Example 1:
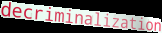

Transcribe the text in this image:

decriminalization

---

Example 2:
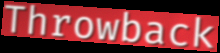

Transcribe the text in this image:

Throwback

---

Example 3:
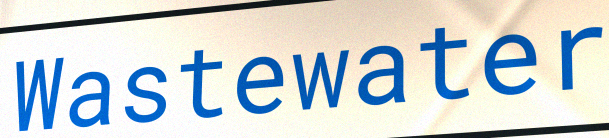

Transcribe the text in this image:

Wastewater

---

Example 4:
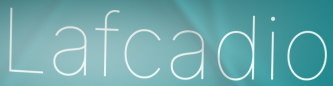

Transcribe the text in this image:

Lafcadio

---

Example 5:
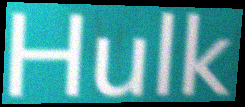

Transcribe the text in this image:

Hulk